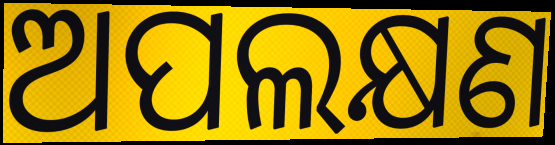
ଅପଲକ୍ଷଣ